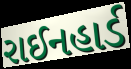
રાઈનહાર્ડ